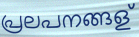
പ്രലപനങ്ങള്